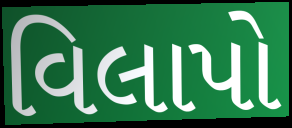
વિલાપો